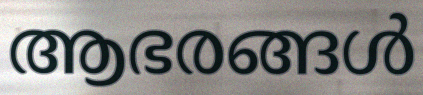
ആഭരങ്ങൾ